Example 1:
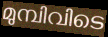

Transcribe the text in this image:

മുമ്പിവിടെ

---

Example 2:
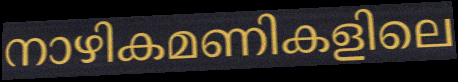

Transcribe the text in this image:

നാഴികമണികളിലെ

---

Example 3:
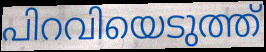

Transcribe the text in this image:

പിറവിയെടുത്ത്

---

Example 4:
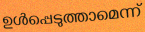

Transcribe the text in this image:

ഉൾപ്പെടുത്താമെന്ന്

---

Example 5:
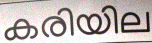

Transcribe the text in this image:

കരിയില